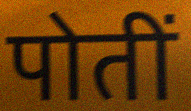
पोतीं